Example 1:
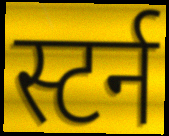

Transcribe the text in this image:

स्टर्न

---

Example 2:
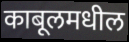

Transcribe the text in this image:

काबूलमधील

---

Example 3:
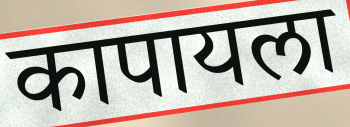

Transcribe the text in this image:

कापायला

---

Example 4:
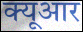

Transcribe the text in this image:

क्यूआर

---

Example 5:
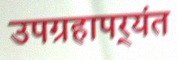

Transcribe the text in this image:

उपग्रहापर्यंत